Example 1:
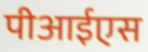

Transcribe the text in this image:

पीआईएस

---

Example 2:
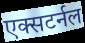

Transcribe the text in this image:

एक्सटर्नल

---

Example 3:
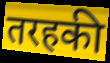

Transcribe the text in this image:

तरहकी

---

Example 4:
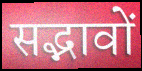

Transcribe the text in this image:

सद्भावों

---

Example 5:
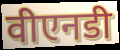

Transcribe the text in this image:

वीएनडी